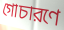
গোচারণে